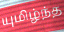
யுமிழ்ந்த